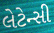
લેટેન્સી